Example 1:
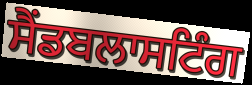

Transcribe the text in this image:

ਸੈਂਡਬਲਾਸਟਿੰਗ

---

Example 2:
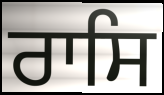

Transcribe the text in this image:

ਰਾਸਿ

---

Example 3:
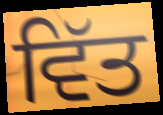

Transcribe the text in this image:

ਵਿੱਤ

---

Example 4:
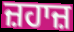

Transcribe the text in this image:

ਜ਼ਹਾਜ਼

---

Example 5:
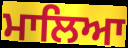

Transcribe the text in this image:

ਮਾਲਿਆ